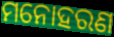
ମନୋହରଣ